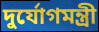
দুর্যোগমন্ত্রী